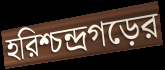
হরিশ্চন্দ্রগড়ের